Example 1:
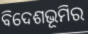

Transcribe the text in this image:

ବିଦେଶଭୂମିର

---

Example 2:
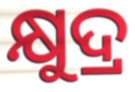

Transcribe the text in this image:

କ୍ଷୁଦ୍ର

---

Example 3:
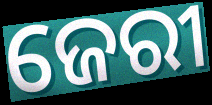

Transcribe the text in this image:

ଜେରୀ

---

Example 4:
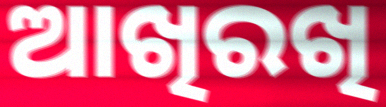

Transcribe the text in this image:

ଆଖିରଖି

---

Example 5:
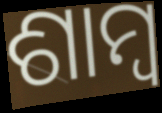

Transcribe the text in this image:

ଶାମ୍ୱ